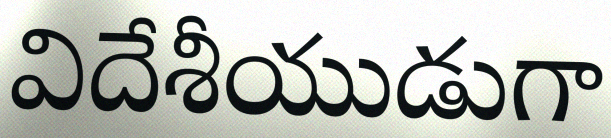
విదేశీయుడుగా